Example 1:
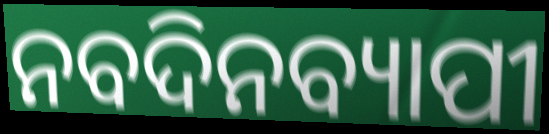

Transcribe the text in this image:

ନବଦିନବ୍ୟାପୀ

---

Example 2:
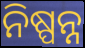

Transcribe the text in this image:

ନିଷ୍ପନ୍ନ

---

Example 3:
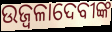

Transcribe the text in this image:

ଉଜ୍ୱଳାଦେବୀଙ୍କ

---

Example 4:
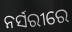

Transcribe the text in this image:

ନର୍ସରୀରେ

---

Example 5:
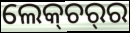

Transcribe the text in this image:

ଲେକ୍‌ଚର୍‌ର